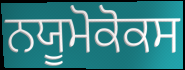
ਨਯੂਮੋਕੋਕਸ